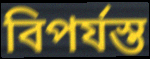
বিপর্যস্ত